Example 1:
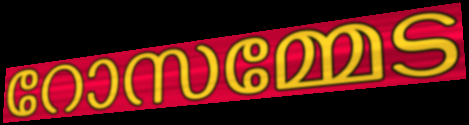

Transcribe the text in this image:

റോസമ്മേട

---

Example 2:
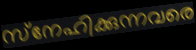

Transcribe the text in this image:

സ്‌നേഹിക്കുന്നവരെ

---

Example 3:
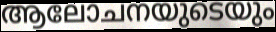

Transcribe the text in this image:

ആലോചനയുടെയും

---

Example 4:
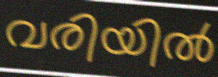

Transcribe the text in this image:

വരിയിൽ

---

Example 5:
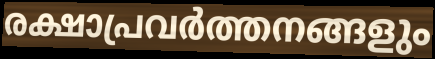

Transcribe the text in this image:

രക്ഷാപ്രവർത്തനങ്ങളും